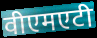
वीएमएटी